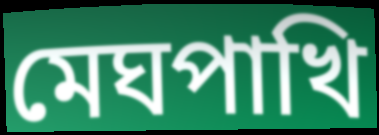
মেঘপাখি